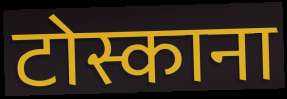
टोस्काना